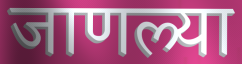
जाणल्या